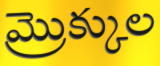
మ్రొక్కుల